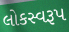
લોકસ્વરૂપ